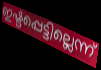
ഇഷ്ടപ്പെട്ടില്ലെന്ന്